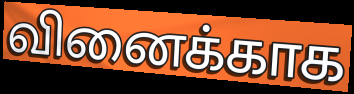
வினைக்காக